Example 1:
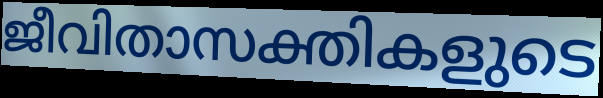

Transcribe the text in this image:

ജീവിതാസക്തികളുടെ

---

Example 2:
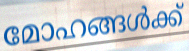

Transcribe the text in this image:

മോഹങ്ങൾക്ക്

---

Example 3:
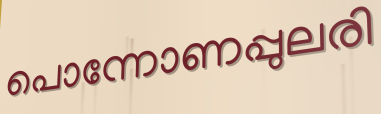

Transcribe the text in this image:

പൊന്നോണപ്പുലരി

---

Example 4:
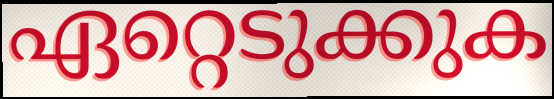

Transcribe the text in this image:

ഏറ്റെടുക്കുക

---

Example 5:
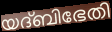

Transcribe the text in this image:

യദ്ബിഭേതി